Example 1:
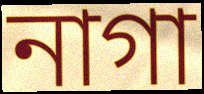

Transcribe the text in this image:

নাগা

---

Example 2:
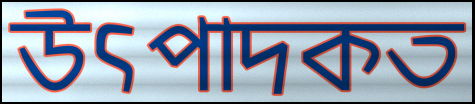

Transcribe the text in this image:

উৎপাদকত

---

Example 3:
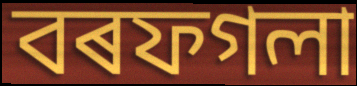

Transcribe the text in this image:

বৰফগলা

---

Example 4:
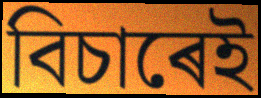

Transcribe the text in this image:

বিচাৰেই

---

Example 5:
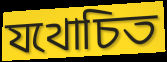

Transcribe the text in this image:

যথোচিত